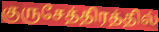
குருசேத்திரத்தில்